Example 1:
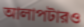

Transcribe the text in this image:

আলাপটারও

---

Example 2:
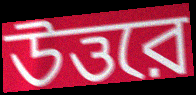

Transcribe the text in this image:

উত্তরে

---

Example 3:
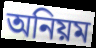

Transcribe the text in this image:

অনিয়ম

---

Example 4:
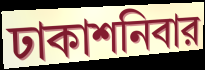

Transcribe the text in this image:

ঢাকাশনিবার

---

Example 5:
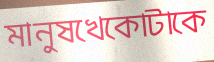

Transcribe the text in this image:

মানুষখেকোটাকে